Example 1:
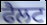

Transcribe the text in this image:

ਫੈਲਟ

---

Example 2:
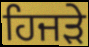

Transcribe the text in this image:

ਹਿਜੜੇ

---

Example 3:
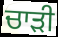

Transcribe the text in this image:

ਚਾਡ਼ੀ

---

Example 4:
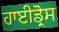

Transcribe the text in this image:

ਹਾਈਡ੍ਰੋਸ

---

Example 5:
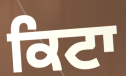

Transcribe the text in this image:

ਕਿਟਾ